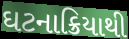
ઘટનાક્રિયાથી